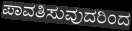
ಪಾವತಿಸುವುದರಿಂದ